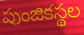
పుంజికస్థల